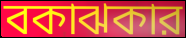
বকাঝকার